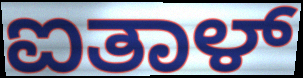
ಐತಾಳ್